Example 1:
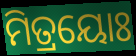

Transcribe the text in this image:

ମିତ୍ରୟୋଃ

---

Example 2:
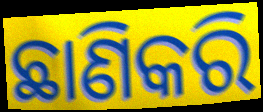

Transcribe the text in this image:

ଛାଣିକରି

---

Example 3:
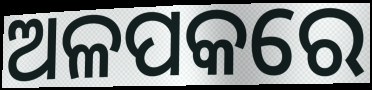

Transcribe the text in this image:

ଅଳପକରେ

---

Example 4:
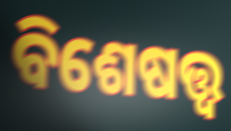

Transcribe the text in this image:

ବିଶେଷତ୍ତ୍ୱ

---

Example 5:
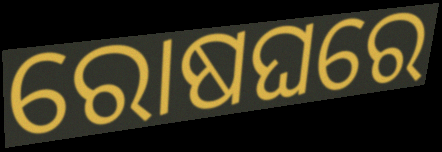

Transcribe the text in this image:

ରୋଷଘରେ